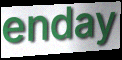
enday